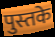
पुस्‍तके